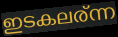
ഇടകലര്ന്ന